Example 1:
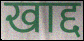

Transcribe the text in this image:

खाद्द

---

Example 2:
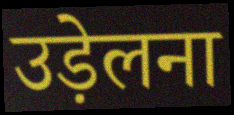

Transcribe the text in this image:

उड़ेलना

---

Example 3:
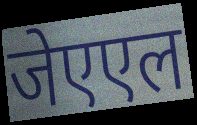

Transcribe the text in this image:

जेएएल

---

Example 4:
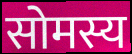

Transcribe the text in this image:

सोमस्य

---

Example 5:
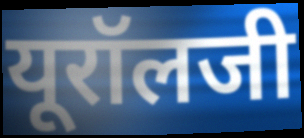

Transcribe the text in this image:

यूरॉलजी